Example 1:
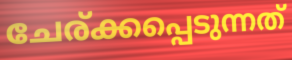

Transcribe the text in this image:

ചേര്ക്കപ്പെടുന്നത്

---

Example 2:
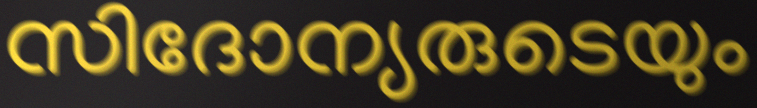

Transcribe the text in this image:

സിദോന്യരുടെയും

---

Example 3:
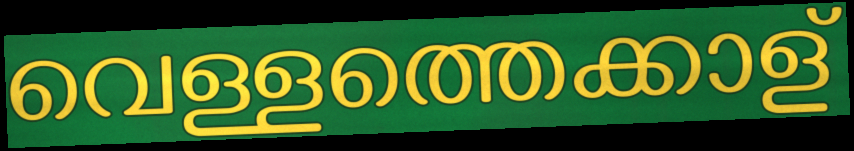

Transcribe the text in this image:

വെള്ളത്തെക്കാള്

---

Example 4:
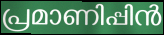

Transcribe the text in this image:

പ്രമാണിപ്പിൻ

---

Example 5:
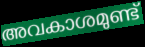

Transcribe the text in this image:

അവകാശമുണ്ട്